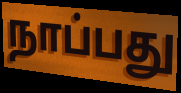
நாப்பது